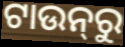
ଟାଉନ୍‌ରୁ